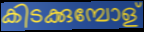
കിടക്കുമ്പോള്